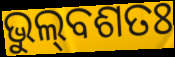
ଭୁଲ୍‌ବଶତଃ